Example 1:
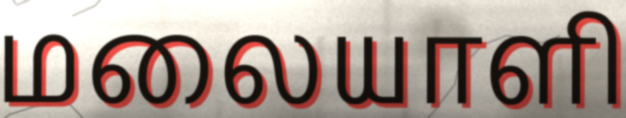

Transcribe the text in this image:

மலையாளி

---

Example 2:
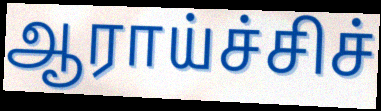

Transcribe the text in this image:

ஆராய்ச்சிச்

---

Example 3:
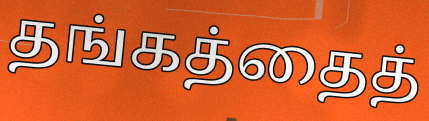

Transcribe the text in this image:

தங்கத்தைத்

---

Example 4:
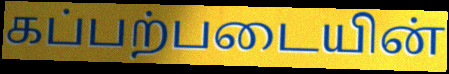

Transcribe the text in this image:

கப்பற்படையின்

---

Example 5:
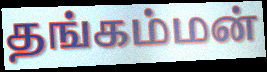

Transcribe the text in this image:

தங்கம்மன்